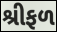
શ્રીફળ